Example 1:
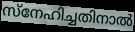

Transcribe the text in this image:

സ്നേഹിച്ചതിനാൽ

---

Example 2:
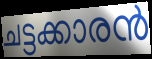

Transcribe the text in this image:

ചട്ടക്കാരൻ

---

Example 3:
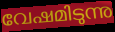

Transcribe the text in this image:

വേഷമിടുന്നു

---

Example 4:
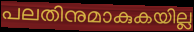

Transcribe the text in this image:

പലതിനുമാകുകയില്ല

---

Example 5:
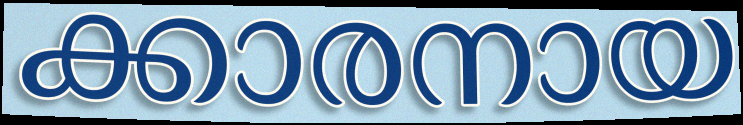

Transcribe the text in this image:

ക്കാരനായ